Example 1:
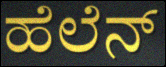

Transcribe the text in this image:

ಹೆಲೆನ್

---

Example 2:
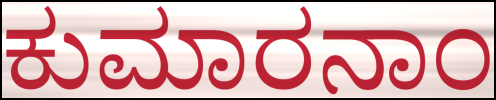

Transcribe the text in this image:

ಕುಮಾರನಾಂ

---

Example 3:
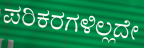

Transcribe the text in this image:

ಪರಿಕರಗಳಿಲ್ಲದೇ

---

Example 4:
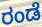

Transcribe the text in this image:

ರಂಡೆ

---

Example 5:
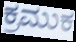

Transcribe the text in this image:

ಕ್ರಮುಕ